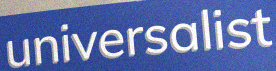
universalist